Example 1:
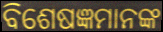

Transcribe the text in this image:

ବିଶେଷଜ୍ଞମାନଙ୍କ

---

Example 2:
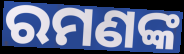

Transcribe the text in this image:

ରମଣଙ୍କ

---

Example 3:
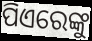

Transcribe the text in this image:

ପିଏରେଙ୍କୁ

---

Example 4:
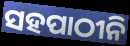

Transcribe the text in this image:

ସହପାଠୀନି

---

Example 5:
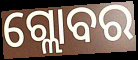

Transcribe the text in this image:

ଗ୍ଲୋବର